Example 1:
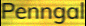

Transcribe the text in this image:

Penngal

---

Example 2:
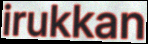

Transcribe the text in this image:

irukkan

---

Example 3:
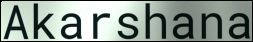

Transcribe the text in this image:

Akarshana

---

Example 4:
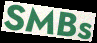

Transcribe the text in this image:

SMBs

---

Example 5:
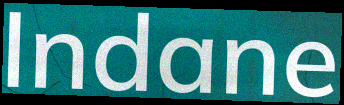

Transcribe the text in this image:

Indane